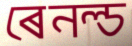
ৰেনল্ড